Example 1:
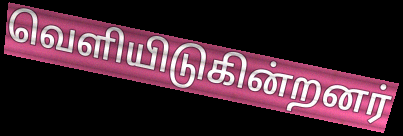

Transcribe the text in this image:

வெளியிடுகின்றனர்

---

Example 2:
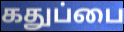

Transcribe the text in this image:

கதுப்பை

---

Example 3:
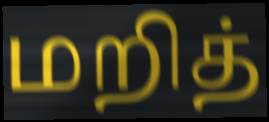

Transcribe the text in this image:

மறித்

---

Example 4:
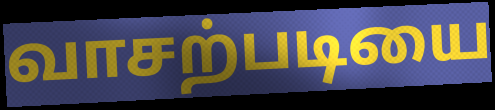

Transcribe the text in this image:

வாசற்படியை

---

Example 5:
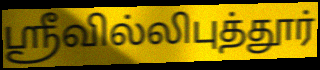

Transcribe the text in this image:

ஸ்ரீவில்லிபுத்தூர்